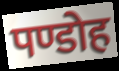
पण्डोह